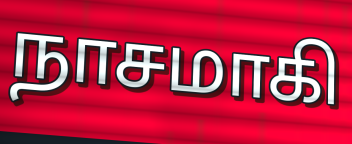
நாசமாகி